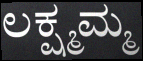
ಲಕ್ಷ್ಮಮ್ಮ